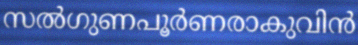
സൽഗുണപൂർണരാകുവിൻ